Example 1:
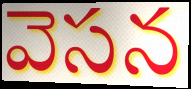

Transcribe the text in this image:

వెసన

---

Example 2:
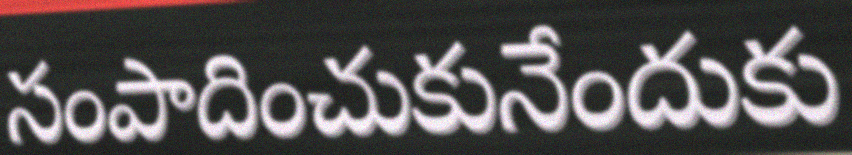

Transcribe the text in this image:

సంపాదించుకునేందుకు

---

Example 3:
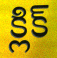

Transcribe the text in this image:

క్లిక్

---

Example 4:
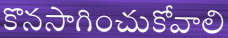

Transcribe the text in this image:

కొనసాగించుకోవాలి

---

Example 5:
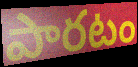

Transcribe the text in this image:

పారటం